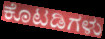
ಕೊಟಡಿಗಳು